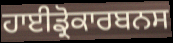
ਹਾਈਡ੍ਰੋਕਾਰਬਨਸ